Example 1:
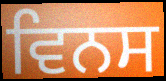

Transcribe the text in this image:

ਵਿਨਸ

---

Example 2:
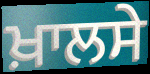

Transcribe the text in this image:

ਖ਼ਾਲਸੇ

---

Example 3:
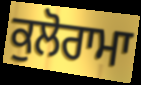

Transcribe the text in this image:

ਕੁਲੋਰਾਮਾ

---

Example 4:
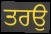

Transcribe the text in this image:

ਤਰਉ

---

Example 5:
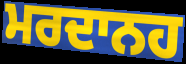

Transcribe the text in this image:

ਮਰਦਾਨਹ